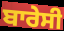
ਬਾਰੇਸੀ